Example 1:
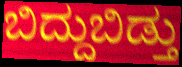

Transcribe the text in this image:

ಬಿದ್ದುಬಿಡ್ತು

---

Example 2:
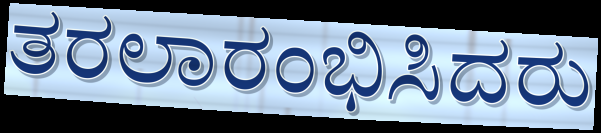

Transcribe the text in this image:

ತರಲಾರಂಭಿಸಿದರು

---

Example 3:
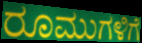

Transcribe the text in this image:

ರೂಮುಗಳಿಗೆ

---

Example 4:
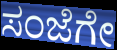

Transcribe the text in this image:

ಸಂಜೆಗೇ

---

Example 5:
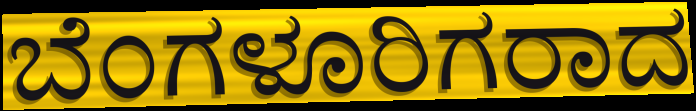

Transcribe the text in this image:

ಬೆಂಗಳೂರಿಗರಾದ